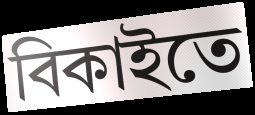
বিকাইতে